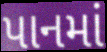
પાનમાં